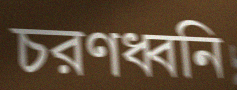
চরণধ্বনি